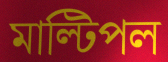
মাল্টিপল